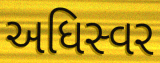
અધિસ્વર